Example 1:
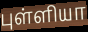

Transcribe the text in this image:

புள்ளியா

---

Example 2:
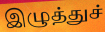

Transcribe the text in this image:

இழுத்துச்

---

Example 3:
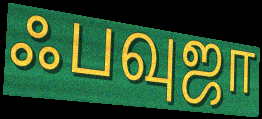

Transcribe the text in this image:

ஃபவுஜா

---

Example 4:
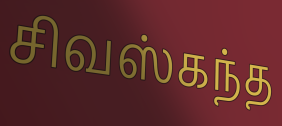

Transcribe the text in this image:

சிவஸ்கந்த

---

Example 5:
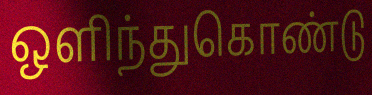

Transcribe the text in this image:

ஒளிந்துகொண்டு